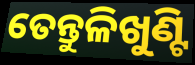
ତେନ୍ତୁଳିଖୁଣ୍ଟି